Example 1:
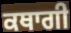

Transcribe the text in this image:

ਕਥਾਗੀ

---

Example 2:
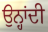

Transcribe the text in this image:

ਉਨ੍ਹਾਂਦੀ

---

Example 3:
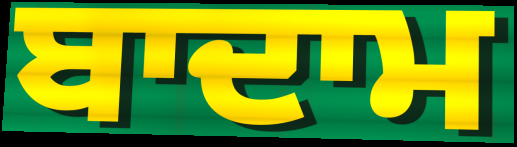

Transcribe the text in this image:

ਬਾਦਾਮ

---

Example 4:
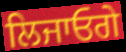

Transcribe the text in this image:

ਲਿਜਾਓਗੇ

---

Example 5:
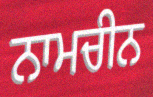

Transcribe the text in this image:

ਨਾਮਚੀਨ